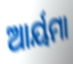
ଆର୍ୟମା